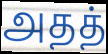
அதத்